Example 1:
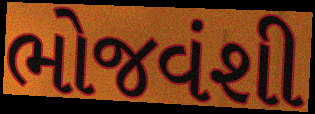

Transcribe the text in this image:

ભોજવંશી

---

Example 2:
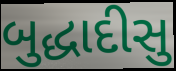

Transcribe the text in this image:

બુદ્ધાદીસુ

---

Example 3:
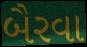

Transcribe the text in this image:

બૈરવા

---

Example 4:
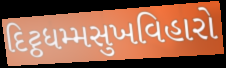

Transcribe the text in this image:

દિટ્ઠધમ્મસુખવિહારો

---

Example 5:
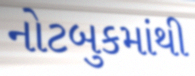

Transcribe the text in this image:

નોટબુકમાંથી